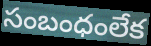
సంబంధంలేక